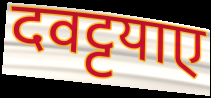
दवट्टयाए